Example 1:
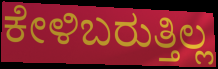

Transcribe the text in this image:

ಕೇಳಿಬರುತ್ತಿಲ್ಲ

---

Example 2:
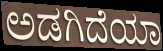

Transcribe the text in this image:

ಅಡಗಿದೆಯಾ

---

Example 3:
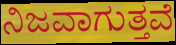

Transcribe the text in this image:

ನಿಜವಾಗುತ್ತವೆ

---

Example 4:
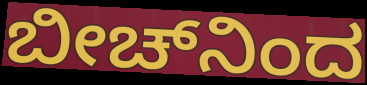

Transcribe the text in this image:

ಬೀಚ್‌ನಿಂದ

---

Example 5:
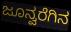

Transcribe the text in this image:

ಜೂನ್ವರೆಗಿನ